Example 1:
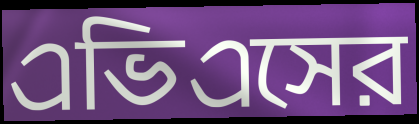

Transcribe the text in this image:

এভিএসের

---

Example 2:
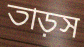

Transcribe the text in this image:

তাড়স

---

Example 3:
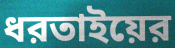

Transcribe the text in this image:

ধরতাইয়ের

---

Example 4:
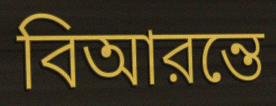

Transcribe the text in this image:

বিআরন্তে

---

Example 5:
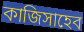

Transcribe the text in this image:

কাজিসাহেব